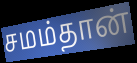
சமம்தான்